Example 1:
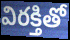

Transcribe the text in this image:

విరక్తితో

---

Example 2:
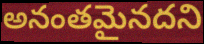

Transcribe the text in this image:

అనంతమైనదని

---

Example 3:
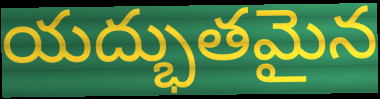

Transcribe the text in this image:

యద్భుతమైన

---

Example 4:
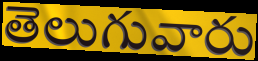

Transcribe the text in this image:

తెలుగువారు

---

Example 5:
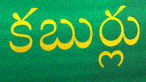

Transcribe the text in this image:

కబుర్లు